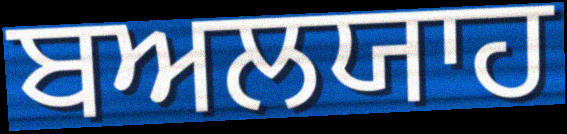
ਬਅਲਯਾਹ